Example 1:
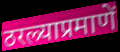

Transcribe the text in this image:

ठरल्याप्रमाणें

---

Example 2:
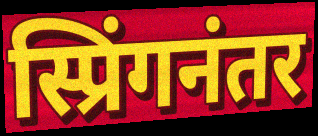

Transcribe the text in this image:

स्प्रिंगनंतर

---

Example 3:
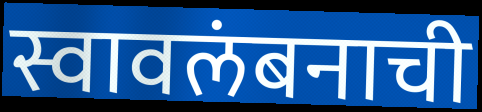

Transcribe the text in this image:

स्वावलंबनाची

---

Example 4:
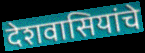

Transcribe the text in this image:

देशवासियांचे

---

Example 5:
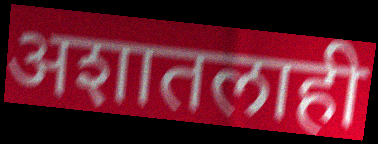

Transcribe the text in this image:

अशातलाही